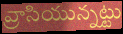
వ్రాసియున్నట్టు